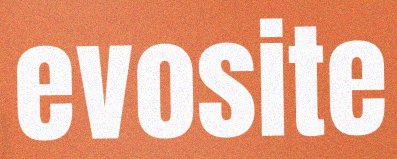
evosite